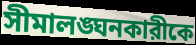
সীমালঙ্ঘনকারীকে